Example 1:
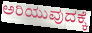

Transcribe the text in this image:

ಅರಿಯುವುದಕ್ಕೆ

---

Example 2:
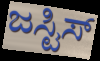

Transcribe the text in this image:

ಜಸ್ಟಿಸ್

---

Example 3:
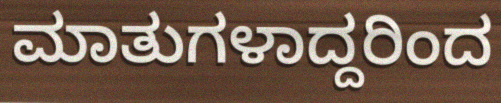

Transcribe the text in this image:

ಮಾತುಗಳಾದ್ದರಿಂದ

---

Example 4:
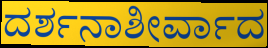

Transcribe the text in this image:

ದರ್ಶನಾಶೀರ್ವಾದ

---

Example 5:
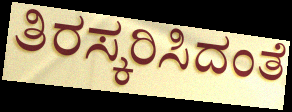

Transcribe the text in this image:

ತಿರಸ್ಕರಿಸಿದಂತೆ